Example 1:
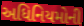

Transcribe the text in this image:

અધિનિયમોની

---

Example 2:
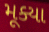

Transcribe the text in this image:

મૂક્યા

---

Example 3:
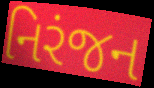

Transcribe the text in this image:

નિરંજન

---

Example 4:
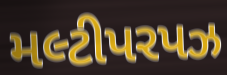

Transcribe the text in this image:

મલ્ટીપરપઝ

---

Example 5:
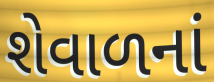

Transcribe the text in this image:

શેવાળનાં